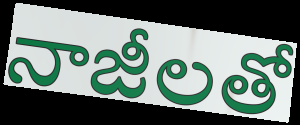
నాజీలతో